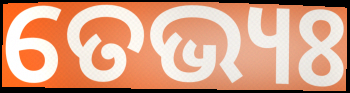
ତେଭ୍ୟଃ